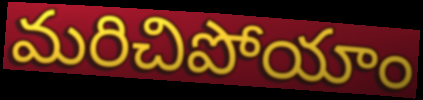
మరిచిపోయాం